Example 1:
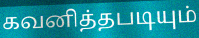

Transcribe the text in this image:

கவனித்தபடியும்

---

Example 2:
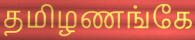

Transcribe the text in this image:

தமிழணங்கே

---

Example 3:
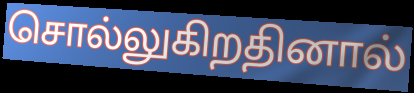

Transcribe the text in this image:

சொல்லுகிறதினால்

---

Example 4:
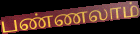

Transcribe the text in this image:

பண்ணலாம்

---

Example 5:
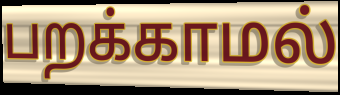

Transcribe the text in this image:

பறக்காமல்